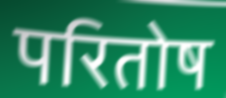
परितोष